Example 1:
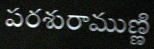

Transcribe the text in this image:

పరశురాముణ్ణి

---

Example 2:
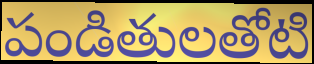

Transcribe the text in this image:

పండితులతోటి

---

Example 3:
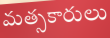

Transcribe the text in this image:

మత్సకారులు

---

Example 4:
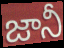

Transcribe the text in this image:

జానీ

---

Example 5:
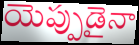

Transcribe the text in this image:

యెప్పుడైనా